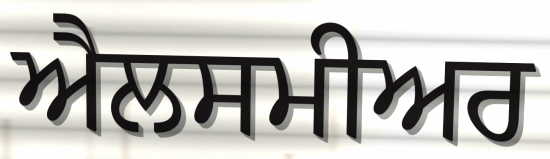
ਐਲਸਮੀਅਰ